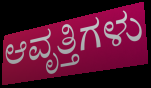
ಆವೃತ್ತಿಗಳು